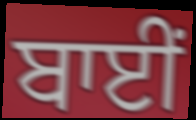
ਬਾਈਂ